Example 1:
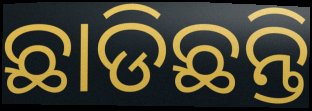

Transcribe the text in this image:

ଛାଡିଛନ୍ତି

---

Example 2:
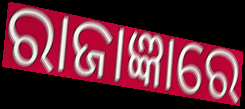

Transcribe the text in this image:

ରାଜାଜ୍ଞାରେ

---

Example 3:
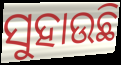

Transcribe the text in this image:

ସୁହାଉଛି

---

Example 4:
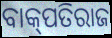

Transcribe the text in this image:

ବାକ୍‌ପତିରାଜ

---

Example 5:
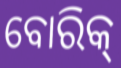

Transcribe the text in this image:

ବୋରିକ୍